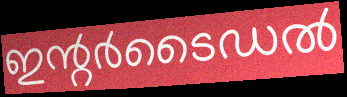
ഇന്റർടൈഡൽ